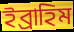
ইব্ৰাহিম